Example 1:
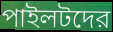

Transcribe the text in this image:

পাইলটদের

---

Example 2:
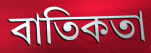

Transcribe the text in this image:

বাতিকতা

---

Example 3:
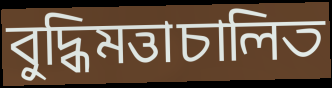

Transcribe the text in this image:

বুদ্ধিমত্তাচালিত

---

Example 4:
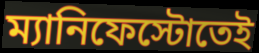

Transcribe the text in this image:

ম্যানিফেস্টোতেই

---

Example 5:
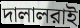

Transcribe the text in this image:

দালালরাই